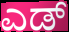
ಎಡ್